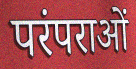
परंपराओं